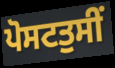
ਪੋਸਟਤੁਸੀਂ